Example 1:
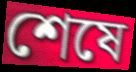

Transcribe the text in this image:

শেষে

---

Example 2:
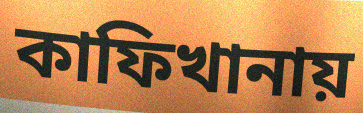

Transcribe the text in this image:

কাফিখানায়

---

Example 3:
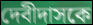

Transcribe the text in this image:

দেবীদাসকে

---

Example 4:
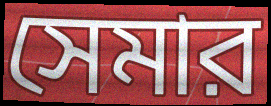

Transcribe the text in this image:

সেমার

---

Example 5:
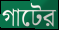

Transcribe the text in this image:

গাটের